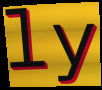
ly